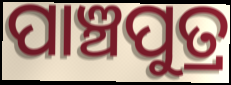
ପାଞ୍ଚପୁତ୍ର